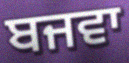
ਬਜਵਾ